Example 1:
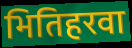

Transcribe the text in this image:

भितिहरवा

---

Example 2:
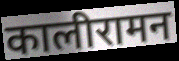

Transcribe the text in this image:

कालीरामन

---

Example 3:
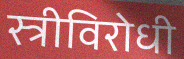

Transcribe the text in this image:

स्त्रीविरोधी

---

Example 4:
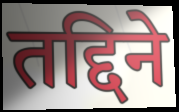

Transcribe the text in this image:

तद्दिने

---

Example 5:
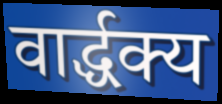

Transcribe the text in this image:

वार्द्धक्य